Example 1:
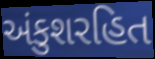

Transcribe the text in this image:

અંકુશરહિત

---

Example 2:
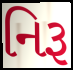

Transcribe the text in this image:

નિરૂ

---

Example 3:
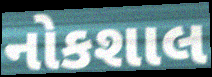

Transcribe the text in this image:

નોકશાલ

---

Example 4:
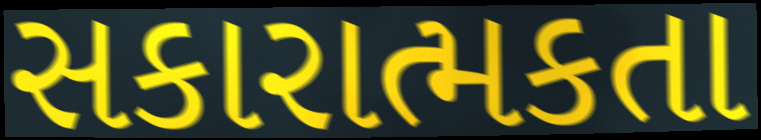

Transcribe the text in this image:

સકારાત્મકતા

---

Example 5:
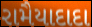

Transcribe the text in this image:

રામૈયાદાદા